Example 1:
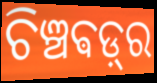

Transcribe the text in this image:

ଚିଞ୍ଚଵଡ଼୍‌ର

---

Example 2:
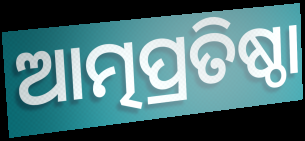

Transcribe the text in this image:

ଆତ୍ମପ୍ରତିଷ୍ଠା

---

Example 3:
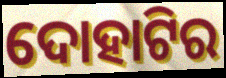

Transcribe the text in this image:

ଦୋହାଟିର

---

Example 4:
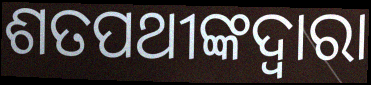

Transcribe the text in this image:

ଶତପଥୀଙ୍କଦ୍ୱାରା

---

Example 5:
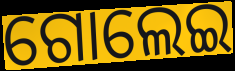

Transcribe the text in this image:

ଗୋଲେଇ